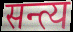
सन्त्य